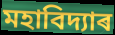
মহাবিদ্যাৰ